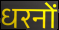
धरनों